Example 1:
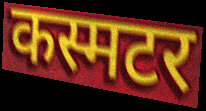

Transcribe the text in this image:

कस्मटर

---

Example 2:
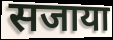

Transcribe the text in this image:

सजाया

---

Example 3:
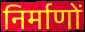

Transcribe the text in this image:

निर्माणों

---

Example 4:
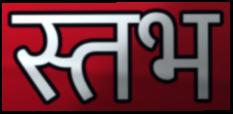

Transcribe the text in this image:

स्तभ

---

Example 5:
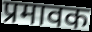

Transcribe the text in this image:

प्रमावक